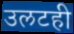
उलटही